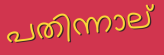
പതിന്നാല്